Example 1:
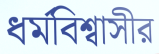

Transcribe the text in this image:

ধর্মবিশ্বাসীর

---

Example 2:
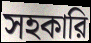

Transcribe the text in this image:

সহকারি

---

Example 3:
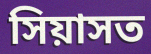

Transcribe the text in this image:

সিয়াসত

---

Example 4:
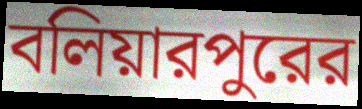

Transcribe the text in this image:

বলিয়ারপুরের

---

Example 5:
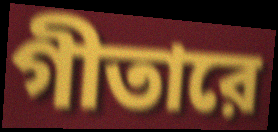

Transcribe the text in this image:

গীতারে